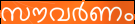
സൗവർണം